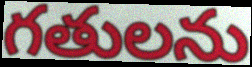
గతులను